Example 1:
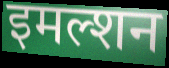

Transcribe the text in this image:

इमल्शन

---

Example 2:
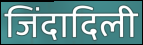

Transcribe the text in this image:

जिंदादिली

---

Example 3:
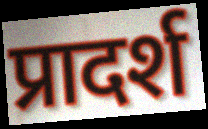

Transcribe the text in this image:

प्रादर्श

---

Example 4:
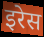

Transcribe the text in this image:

इरेस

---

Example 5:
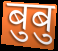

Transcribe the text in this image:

बुबु